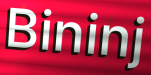
Bininj